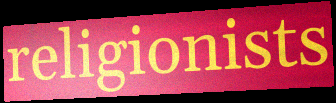
religionists